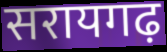
सरायगढ़